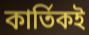
কার্তিকই